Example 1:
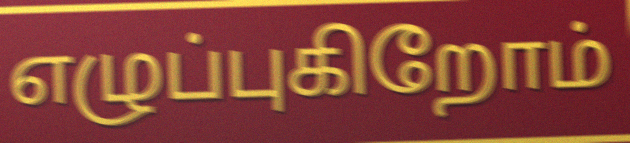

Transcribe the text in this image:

எழுப்புகிறோம்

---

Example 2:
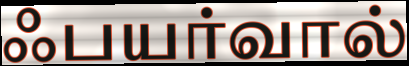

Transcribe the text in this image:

ஃபயர்வால்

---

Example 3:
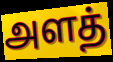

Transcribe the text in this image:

அளத்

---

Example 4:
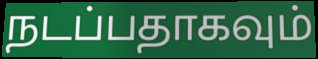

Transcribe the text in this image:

நடப்பதாகவும்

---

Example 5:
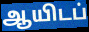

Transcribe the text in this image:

ஆயிடப்